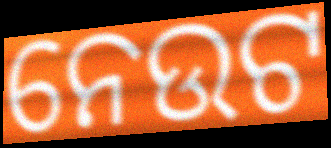
ନେଉଟ